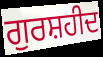
ਗੁਰਸ਼ਹੀਦ